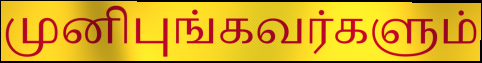
முனிபுங்கவர்களும்